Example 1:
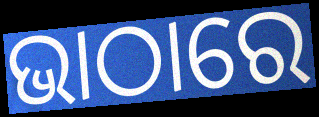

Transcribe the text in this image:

ଭାଠାରେ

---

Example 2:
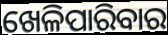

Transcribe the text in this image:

ଖେଳିପାରିବାର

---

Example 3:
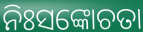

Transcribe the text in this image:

ନିଃସଙ୍କୋଚତା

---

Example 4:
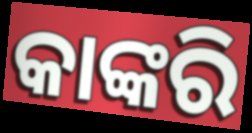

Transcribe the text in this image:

କାଙ୍କରି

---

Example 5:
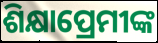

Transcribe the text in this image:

ଶିକ୍ଷାପ୍ରେମୀଙ୍କ